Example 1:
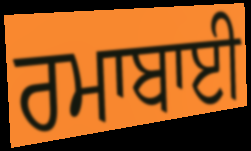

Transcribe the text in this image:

ਰਮਾਬਾਈ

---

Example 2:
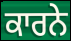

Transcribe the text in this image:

ਕਾਰਨੇ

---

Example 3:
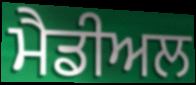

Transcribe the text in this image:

ਮੈਡੀਅਲ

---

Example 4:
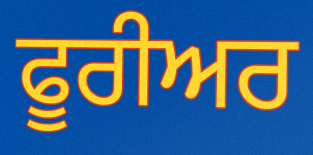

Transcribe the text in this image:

ਫੂਰੀਅਰ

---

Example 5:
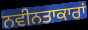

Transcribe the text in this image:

ਨਵੀਨਤਾਕਾਰਾਂ